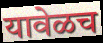
यावेळच